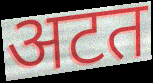
अटत